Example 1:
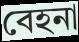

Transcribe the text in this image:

বেহনা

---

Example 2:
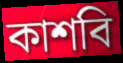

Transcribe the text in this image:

কাশবি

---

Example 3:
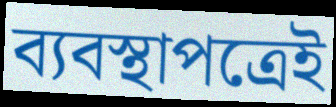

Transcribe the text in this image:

ব্যবস্থাপত্রেই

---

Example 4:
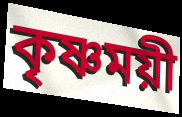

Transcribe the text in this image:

কৃষ্ণময়ী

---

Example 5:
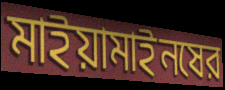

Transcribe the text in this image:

মাইয়ামাইনষের